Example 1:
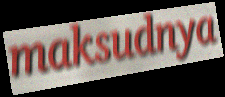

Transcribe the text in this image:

maksudnya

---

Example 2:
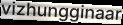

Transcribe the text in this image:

vizhungginaar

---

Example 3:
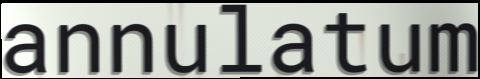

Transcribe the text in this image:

annulatum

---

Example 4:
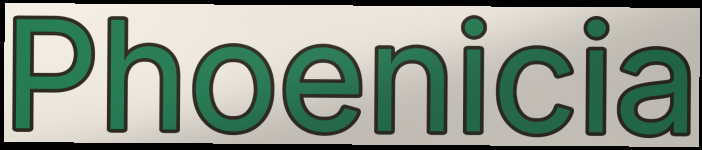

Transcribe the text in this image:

Phoenicia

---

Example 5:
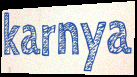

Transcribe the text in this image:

karnya